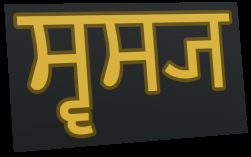
ਸ੍ਵਸ੍ਯ